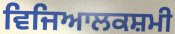
ਵਿਜਿਆਲਕਸ਼ਮੀ